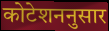
कोटेशननुसार